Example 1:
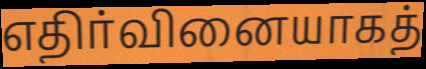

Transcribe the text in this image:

எதிர்வினையாகத்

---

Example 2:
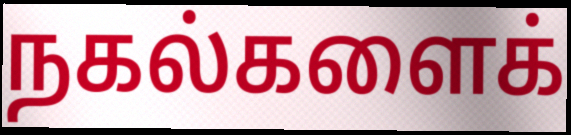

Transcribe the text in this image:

நகல்களைக்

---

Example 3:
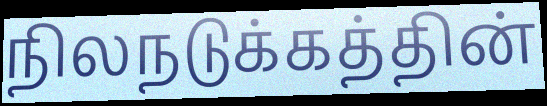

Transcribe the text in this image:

நிலநடுக்கத்தின்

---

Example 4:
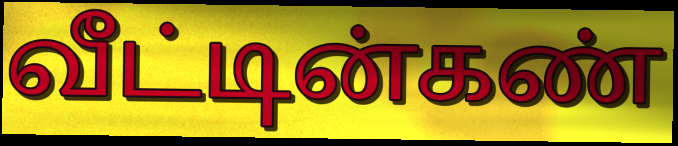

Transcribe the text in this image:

வீட்டின்கண்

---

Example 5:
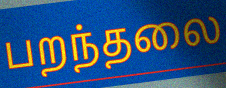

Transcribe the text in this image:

பறந்தலை